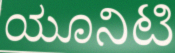
ಯೂನಿಟಿ